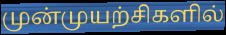
முன்முயற்சிகளில்